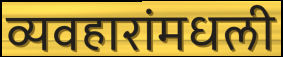
व्यवहारांमधली